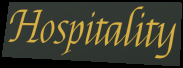
Hospitality